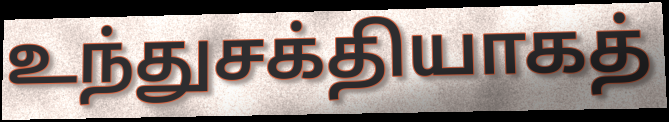
உந்துசக்தியாகத்